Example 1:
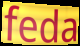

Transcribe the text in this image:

feda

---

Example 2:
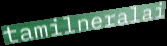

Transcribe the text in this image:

tamilneralai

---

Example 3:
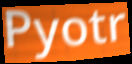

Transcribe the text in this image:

Pyotr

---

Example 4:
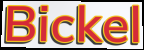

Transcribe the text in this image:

Bickel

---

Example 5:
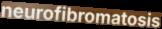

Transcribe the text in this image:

neurofibromatosis